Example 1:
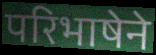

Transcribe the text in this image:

परिभाषेने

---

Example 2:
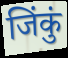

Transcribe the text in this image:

जिंकुं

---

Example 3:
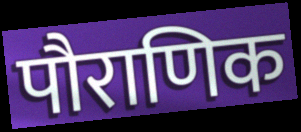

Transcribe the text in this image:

पौराणिक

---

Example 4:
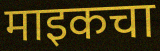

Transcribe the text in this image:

माइकचा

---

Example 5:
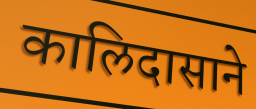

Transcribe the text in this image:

कालिदासाने